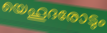
യെഹൂദരോടും